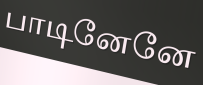
பாடினேனே